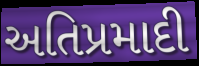
અતિપ્રમાદી